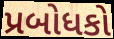
પ્રબોધકો